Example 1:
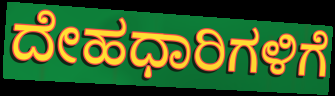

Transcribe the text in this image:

ದೇಹಧಾರಿಗಳಿಗೆ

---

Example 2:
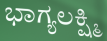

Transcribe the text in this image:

ಭಾಗ್ಯಲಕ್ಷ್ಮಿ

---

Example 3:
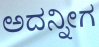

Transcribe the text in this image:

ಅದನ್ನೀಗ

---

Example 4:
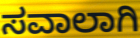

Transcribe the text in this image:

ಸವಾಲಾಗಿ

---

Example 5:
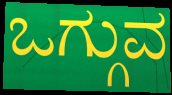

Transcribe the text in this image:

ಒಗ್ಗುವ